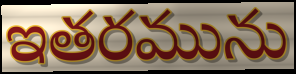
ఇతరమును